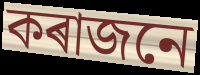
কৰাজনে